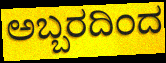
ಅಬ್ಬರದಿಂದ